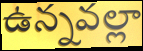
ఉన్నవల్లా